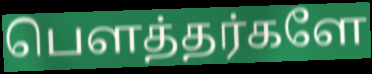
பௌத்தர்களே